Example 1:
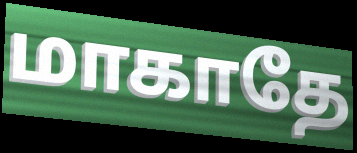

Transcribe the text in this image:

மாகாதே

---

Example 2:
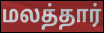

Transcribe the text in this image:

மலத்தார்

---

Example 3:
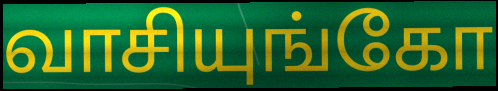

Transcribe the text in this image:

வாசியுங்கோ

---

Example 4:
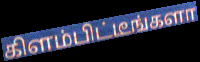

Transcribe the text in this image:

கிளம்பிட்டீங்களா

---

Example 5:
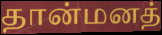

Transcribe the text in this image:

தான்மனத்